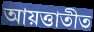
আয়ত্তাতীত